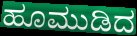
ಹೂಮುಡಿದ